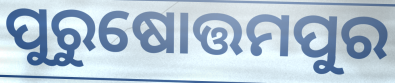
ପୁରୁଷୋତ୍ତମପୁର